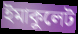
ইমাকুলেট